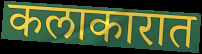
कलाकारात